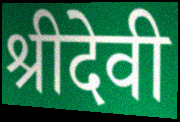
श्रीदेवी